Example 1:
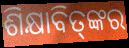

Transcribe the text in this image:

ଶିକ୍ଷାବିତ୍‌ଙ୍କର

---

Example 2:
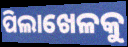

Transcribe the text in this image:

ପିଲାଖେଳକୁ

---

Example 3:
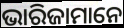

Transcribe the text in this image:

ଭାରିଜାମାନେ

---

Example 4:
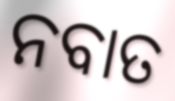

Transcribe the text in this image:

ନବାତ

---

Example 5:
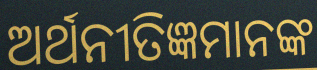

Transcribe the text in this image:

ଅର୍ଥନୀତିଜ୍ଞମାନଙ୍କ